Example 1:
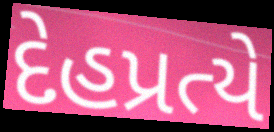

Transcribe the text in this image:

દેહપ્રત્યે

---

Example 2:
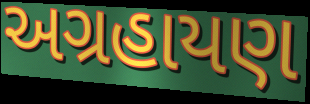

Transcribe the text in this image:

અગ્રહાયણ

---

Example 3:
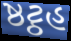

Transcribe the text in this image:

ષ્ઠટ્ઠહ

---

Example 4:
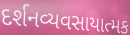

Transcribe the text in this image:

દર્શનવ્યવસાયાત્મક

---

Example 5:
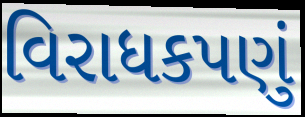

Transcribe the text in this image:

વિરાધકપણું